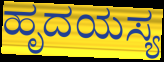
ಹೃದಯಸ್ಯ